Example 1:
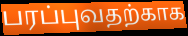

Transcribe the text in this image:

பரப்புவதற்காக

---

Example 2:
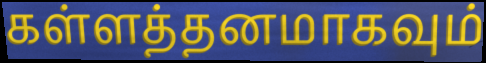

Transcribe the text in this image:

கள்ளத்தனமாகவும்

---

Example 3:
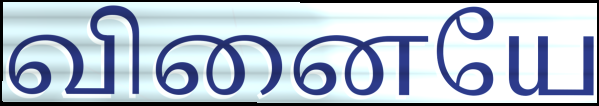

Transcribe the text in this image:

வினையே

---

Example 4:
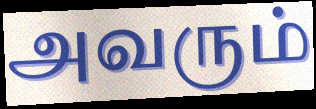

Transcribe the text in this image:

அவரும்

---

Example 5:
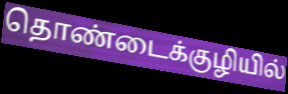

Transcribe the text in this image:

தொண்டைக்குழியில்